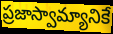
ప్రజాస్వామ్యానికే